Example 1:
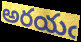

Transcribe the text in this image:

అరయఁ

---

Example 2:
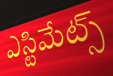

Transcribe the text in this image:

ఎస్టిమేట్స్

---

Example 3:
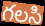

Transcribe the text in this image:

గలసి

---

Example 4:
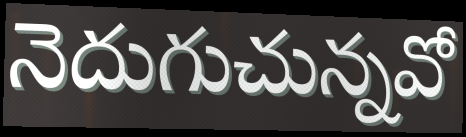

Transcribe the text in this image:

నెదుగుచున్నవో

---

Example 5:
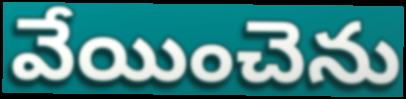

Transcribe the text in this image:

వేయించెను